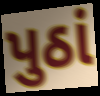
પુઠાં